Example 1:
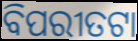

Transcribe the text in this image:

ବିପରୀତଟା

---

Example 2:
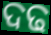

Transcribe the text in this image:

ଦଢ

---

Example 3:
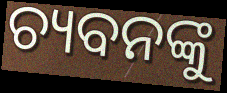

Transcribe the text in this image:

ଚ୍ୟବନଙ୍କୁ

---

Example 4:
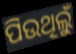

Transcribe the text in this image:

ପିଉଥିଲୁଁ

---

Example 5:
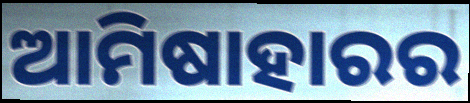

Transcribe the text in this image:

ଆମିଷାହାରର